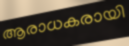
ആരാധകരായി